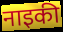
नाइकी